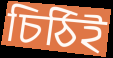
চিঠিই